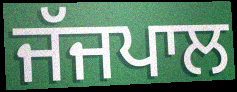
ਜੱਜਪਾਲ